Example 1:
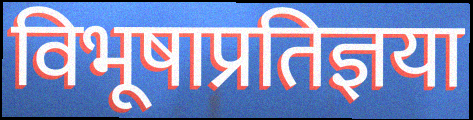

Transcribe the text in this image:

विभूषाप्रतिज्ञया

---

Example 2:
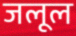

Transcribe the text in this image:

जलूल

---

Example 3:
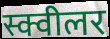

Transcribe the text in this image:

स्क्वीलर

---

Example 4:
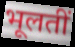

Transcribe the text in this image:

भूलतीं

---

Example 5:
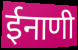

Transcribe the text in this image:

ईनाणी